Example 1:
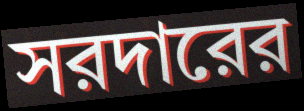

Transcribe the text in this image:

সরদারের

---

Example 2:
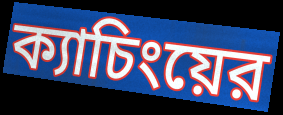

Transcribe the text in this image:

ক্যাচিংয়ের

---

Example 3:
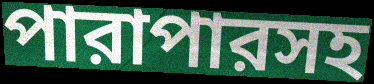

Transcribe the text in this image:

পারাপারসহ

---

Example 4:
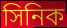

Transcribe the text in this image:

সিনিক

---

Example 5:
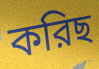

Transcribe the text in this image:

করিছ